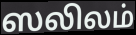
ஸலிலம்